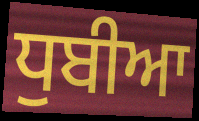
ਧੁਬੀਆ